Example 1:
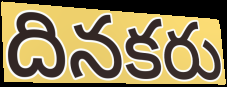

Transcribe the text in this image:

దినకరు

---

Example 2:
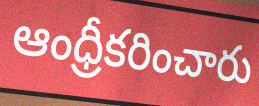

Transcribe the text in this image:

ఆంధ్రీకరించారు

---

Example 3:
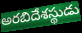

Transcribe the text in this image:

అరబిదేశస్థుడు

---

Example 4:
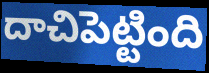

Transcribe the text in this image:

దాచిపెట్టింది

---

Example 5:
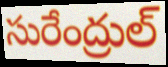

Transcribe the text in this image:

సురేంద్రుల్